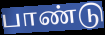
பாண்டு